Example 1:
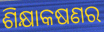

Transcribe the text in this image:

ଶିକ୍ଷାକଷଣର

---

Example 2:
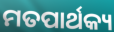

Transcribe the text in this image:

ମତପାର୍ଥକ୍ୟ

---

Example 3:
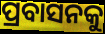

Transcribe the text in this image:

ପ୍ରବାସନକୁ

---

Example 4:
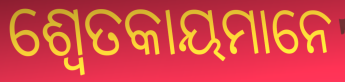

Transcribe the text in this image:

ଶ୍ୱେତକାୟମାନେ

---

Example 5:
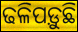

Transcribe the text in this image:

ଢଳିପଡ଼ୁଛି